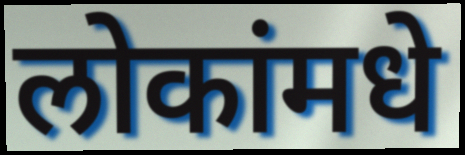
लोकांमधे